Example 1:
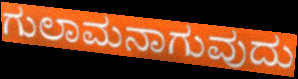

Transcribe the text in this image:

ಗುಲಾಮನಾಗುವುದು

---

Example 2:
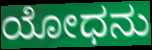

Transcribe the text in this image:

ಯೋಧನು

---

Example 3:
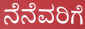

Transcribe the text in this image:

ನೆನೆವರಿಗೆ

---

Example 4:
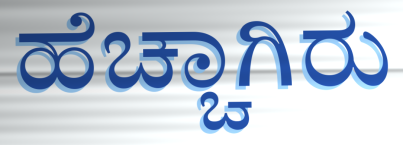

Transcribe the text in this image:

ಹೆಚ್ಚಾಗಿರು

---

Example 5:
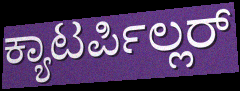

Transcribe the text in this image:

ಕ್ಯಾಟರ್ಪಿಲ್ಲರ್